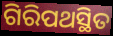
ଗିରିପଥସ୍ଥିତ